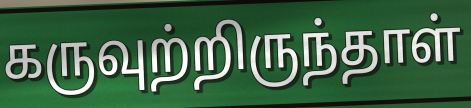
கருவுற்றிருந்தாள்